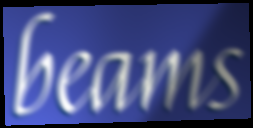
beams